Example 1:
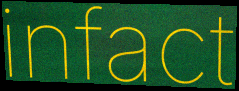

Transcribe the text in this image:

infact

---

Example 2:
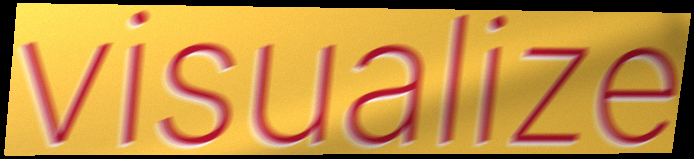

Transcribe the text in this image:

visualize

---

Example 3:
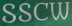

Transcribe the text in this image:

SSCW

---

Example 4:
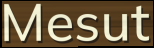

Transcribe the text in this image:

Mesut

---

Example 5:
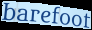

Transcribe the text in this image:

barefoot